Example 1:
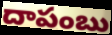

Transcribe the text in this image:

దాపంబు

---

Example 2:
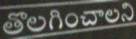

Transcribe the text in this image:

తొలగించాలని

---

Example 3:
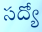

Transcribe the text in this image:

సద్యో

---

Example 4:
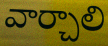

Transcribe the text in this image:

వార్చాలి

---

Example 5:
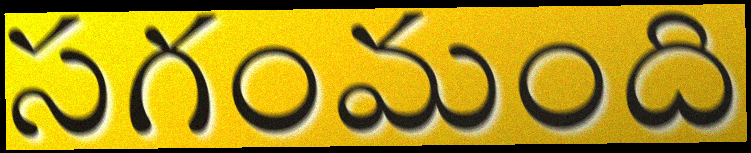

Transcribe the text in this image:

సగంమంది